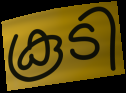
കൂടി